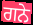
ਗਨੇ